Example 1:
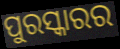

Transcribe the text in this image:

ପୁରସ୍କାରର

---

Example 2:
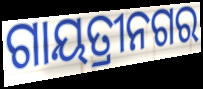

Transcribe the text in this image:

ଗାୟତ୍ରୀନଗର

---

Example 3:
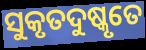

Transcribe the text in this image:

ସୁକୃତଦୁଷ୍କୃତେ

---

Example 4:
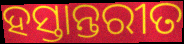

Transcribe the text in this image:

ହସ୍ତାନ୍ତରୀତ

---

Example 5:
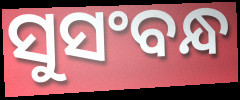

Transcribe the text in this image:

ସୁସଂବନ୍ଧ